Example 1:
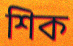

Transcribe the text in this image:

শিক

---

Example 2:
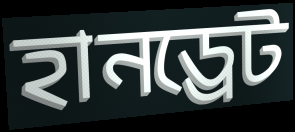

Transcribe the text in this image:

হানড্রেট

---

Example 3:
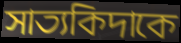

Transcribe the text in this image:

সাত্যকিদাকে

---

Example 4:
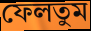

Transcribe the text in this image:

ফেলতুম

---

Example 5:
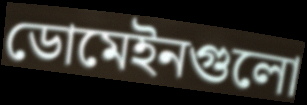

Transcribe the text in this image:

ডোমেইনগুলো